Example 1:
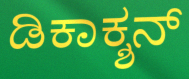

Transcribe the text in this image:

ಡಿಕಾಕ್ಶನ್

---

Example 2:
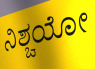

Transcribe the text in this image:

ನಿಶ್ಚಯೋ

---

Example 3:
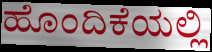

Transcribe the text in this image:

ಹೊಂದಿಕೆಯಲ್ಲಿ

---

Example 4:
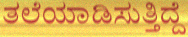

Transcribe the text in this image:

ತಲೆಯಾಡಿಸುತ್ತಿದ್ದೆ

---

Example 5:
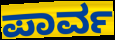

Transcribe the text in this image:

ಪಾರ್ವ